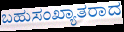
ಬಹುಸಂಖ್ಯಾತರಾದ